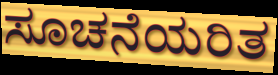
ಸೂಚನೆಯರಿತ